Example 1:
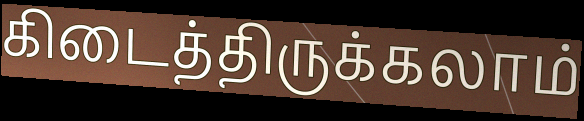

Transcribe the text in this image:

கிடைத்திருக்கலாம்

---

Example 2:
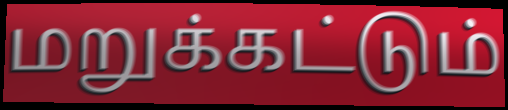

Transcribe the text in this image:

மறுக்கட்டும்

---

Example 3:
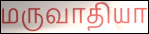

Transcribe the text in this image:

மருவாதியா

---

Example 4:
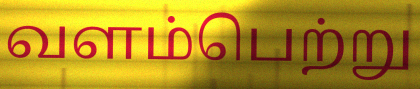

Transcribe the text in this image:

வளம்பெற்று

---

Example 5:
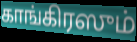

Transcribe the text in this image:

காங்கிரஸும்